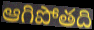
ఆగిపోతది